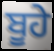
ਬੂਹੇ